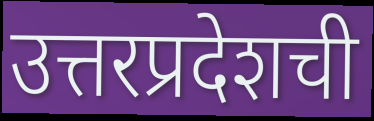
उत्तरप्रदेशची